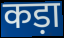
कड़ा